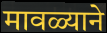
मावळ्याने